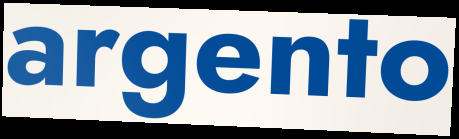
argento